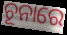
ଚୂନାରେ